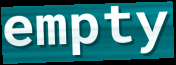
empty